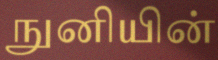
நுனியின்